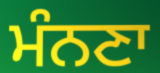
ਮੰਨਣਾ